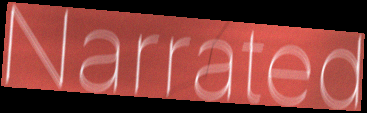
Narrated